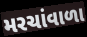
મરચાંવાળા